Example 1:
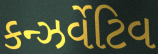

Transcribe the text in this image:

કન્ઝર્વેટિવ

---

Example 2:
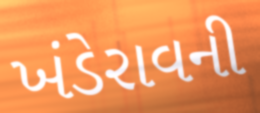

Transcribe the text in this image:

ખંડેરાવની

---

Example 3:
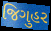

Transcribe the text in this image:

જિગુહર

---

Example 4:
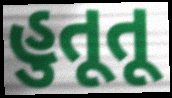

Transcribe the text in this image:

હુતૂતૂ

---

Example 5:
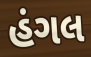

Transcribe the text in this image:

હંગલ